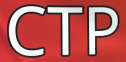
CTP